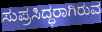
ಸುಪ್ರಸಿದ್ಧರಾಗಿರುವ